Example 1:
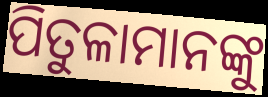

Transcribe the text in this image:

ପିତୁଳାମାନଙ୍କୁ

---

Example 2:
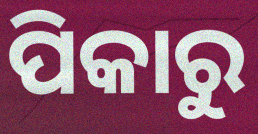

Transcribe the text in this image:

ପିକାରୁ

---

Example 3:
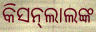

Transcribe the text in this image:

କିସନ୍‌ଲାଲଙ୍କ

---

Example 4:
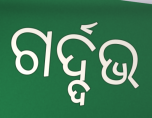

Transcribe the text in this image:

ଗର୍ଦ୍ଦଭ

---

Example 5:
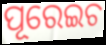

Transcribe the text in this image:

ପୂରେଇଚ